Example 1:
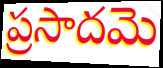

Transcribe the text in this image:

ప్రసాదమె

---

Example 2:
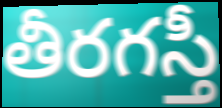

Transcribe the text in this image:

తీరగస్తీ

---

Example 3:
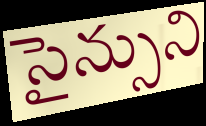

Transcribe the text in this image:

సైన్సుని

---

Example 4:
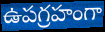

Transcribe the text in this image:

ఉపగ్రహంగా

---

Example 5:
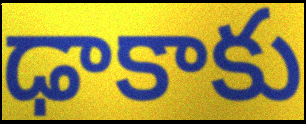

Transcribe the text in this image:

ఢాకాకు